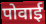
पोवाई